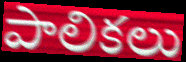
పాలికలు